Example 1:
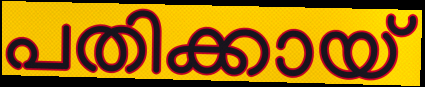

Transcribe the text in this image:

പതിക്കായ്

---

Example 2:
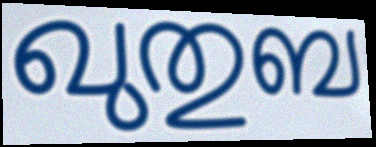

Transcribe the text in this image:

ഖുതുബ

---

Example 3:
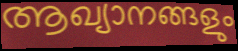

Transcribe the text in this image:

ആഖ്യാനങ്ങളും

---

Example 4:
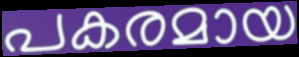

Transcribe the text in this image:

പകരമായ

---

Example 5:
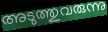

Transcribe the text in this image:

അടുത്തുവരുന്നു